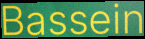
Bassein